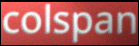
colspan